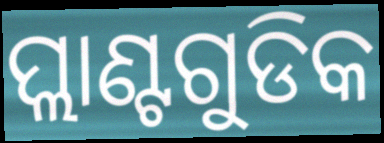
ପ୍ଲାଣ୍ଟଗୁଡିକ